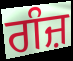
ਗੰਜ਼